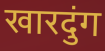
खारदुंग